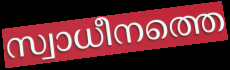
സ്വാധീനത്തെ